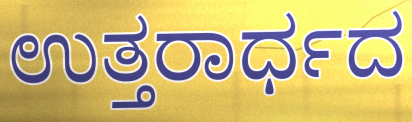
ಉತ್ತರಾರ್ಧದ